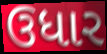
ઉધાર